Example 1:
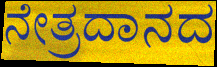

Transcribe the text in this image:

ನೇತ್ರದಾನದ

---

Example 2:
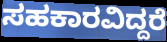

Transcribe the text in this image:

ಸಹಕಾರವಿದ್ದರೆ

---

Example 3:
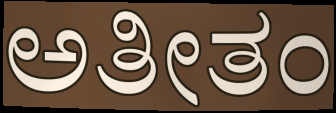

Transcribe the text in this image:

ಅತೀತಂ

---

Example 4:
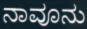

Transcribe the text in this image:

ನಾವೂನು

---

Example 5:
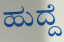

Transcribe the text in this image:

ಹುದ್ದೆ